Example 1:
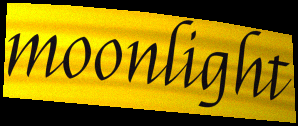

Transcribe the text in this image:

moonlight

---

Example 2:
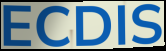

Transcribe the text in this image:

ECDIS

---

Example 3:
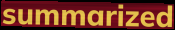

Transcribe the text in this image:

summarized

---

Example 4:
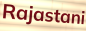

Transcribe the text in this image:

Rajastani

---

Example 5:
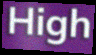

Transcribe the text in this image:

High